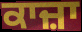
ਕਾਜ਼ਾ